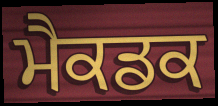
ਮੈਕਡਕ